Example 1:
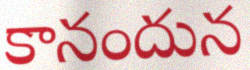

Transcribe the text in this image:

కానందున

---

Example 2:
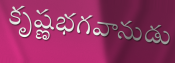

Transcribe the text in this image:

కృష్ణభగవానుడు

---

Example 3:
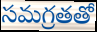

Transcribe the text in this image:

సమగ్రతతో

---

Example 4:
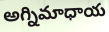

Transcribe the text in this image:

అగ్నిమాధాయ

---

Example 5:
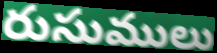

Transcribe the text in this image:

రుసుములు